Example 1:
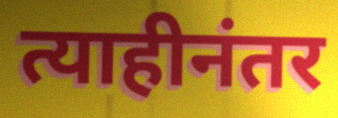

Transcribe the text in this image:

त्याहीनंतर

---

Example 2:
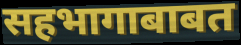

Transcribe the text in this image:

सहभागाबाबत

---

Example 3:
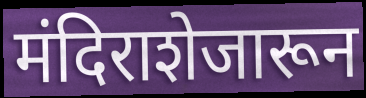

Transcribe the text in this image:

मंदिराशेजारून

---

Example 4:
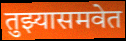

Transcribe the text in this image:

तुझ्यासमवेत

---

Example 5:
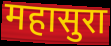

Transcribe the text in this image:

महासुरा